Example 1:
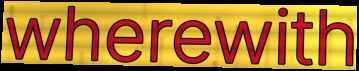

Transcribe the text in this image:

wherewith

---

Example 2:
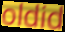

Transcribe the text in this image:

oldid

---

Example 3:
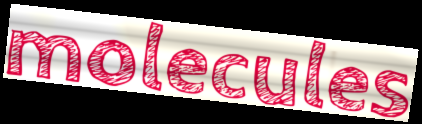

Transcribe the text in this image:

molecules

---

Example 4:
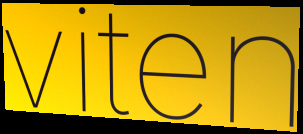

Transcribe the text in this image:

viten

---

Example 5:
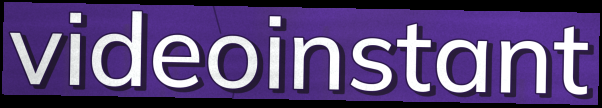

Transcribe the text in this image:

videoinstant